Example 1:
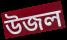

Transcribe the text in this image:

উজল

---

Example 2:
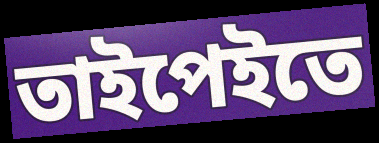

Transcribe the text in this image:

তাইপেইতে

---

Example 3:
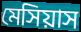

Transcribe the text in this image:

মেসিয়াস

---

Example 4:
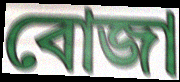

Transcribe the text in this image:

বোজা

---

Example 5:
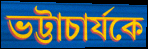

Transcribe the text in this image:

ভট্টাচার্যকে